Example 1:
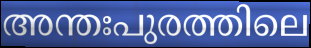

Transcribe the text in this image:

അന്തഃപുരത്തിലെ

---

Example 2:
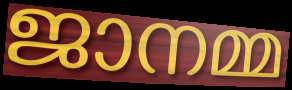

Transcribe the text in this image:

ജാനമ്മ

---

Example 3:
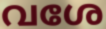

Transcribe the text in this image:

വശേ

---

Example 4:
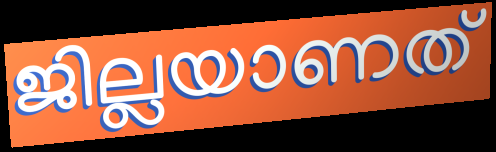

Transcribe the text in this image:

ജില്ലയാണത്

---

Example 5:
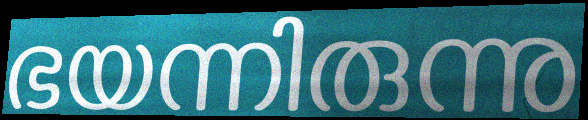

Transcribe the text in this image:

ഭയന്നിരുന്നു